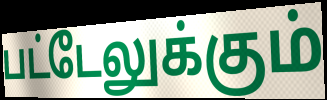
பட்டேலுக்கும்